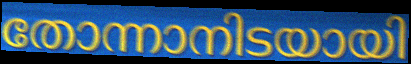
തോന്നാനിടയായി